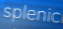
splenic